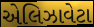
એલિઝાવેટા